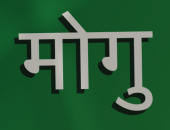
मोगु